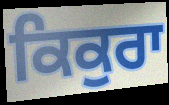
ਕਿਕੁਰਾ